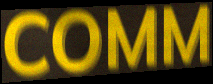
COMM